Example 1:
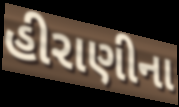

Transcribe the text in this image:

હીરાણીના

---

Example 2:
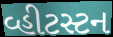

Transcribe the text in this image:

વ્હીટસ્ટન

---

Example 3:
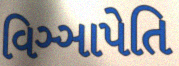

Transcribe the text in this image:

વિઞ્ઞાપેતિ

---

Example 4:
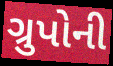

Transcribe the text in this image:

ગ્રુપોની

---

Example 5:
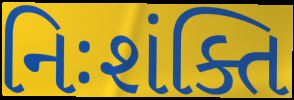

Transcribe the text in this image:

નિઃશંક્તિ